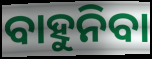
ବାହୁନିବା